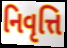
નિવૃત્તિ